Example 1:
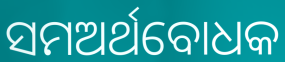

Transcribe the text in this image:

ସମଅର୍ଥବୋଧକ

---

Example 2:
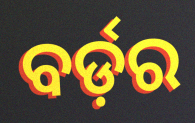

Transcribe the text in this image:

ବର୍ଡ଼ର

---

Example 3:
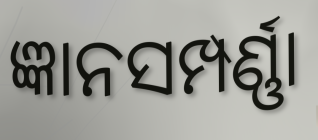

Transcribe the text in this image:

ଜ୍ଞାନସମ୍ପର୍ଣ୍ଣା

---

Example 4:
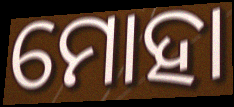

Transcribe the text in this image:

ମୋହା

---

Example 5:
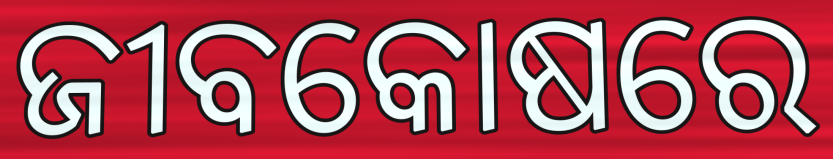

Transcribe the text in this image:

ଜୀବକୋଷରେ